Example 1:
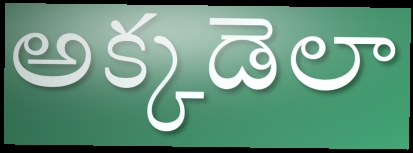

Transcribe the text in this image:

అక్కడెలా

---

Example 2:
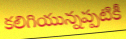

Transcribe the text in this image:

కలిగియున్నప్పటికీ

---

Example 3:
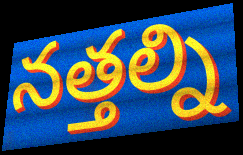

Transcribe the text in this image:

నత్తల్ని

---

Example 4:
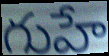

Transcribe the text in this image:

గుహే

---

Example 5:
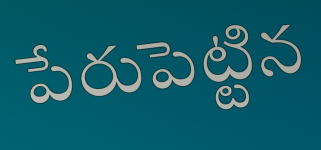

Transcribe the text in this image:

పేరుపెట్టిన